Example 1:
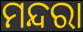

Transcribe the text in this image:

ମନ୍ଦରା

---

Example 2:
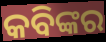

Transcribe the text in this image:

କବିଙ୍କର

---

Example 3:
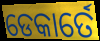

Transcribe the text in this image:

ଡେକାର୍ତେ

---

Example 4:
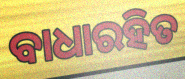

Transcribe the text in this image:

ବାଧାରହିତ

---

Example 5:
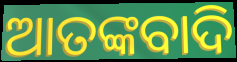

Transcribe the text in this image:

ଆତଙ୍କବାଦି